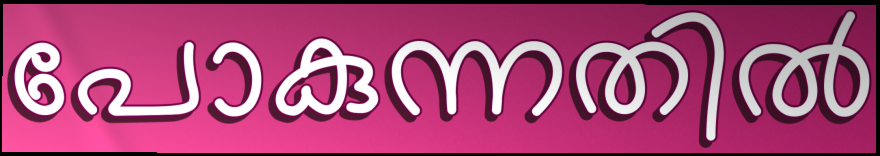
പോകുന്നതിൽ